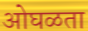
ओघळता